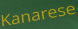
Kanarese